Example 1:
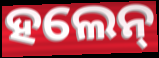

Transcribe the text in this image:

ହଲେନ୍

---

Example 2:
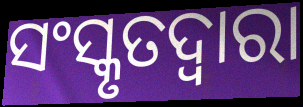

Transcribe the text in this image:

ସଂସ୍କୃତଦ୍ୱାରା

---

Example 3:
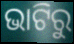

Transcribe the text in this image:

ଭାଟିରୁ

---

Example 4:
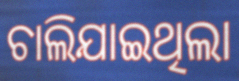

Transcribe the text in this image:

ଚାଲିଯାଇଥିଲା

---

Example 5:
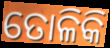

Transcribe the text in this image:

ତୋଳିକି